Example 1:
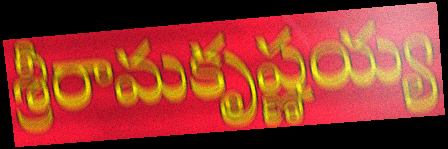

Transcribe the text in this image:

శ్రీరామకృష్ణయ్య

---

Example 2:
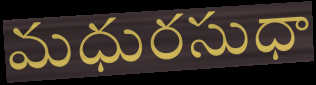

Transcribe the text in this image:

మధురసుధా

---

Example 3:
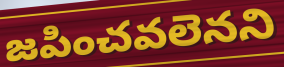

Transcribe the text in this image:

జపించవలెనని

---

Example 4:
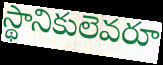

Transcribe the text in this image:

స్థానికులెవరూ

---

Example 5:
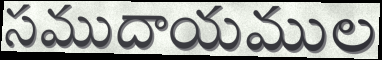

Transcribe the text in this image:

సముదాయముల